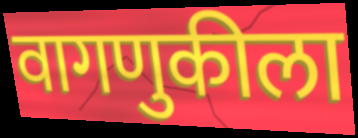
वागणुकीला